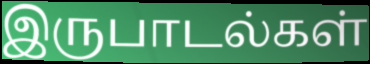
இருபாடல்கள்